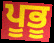
ਪੂਭੂ